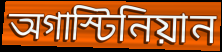
অগাস্টিনিয়ান